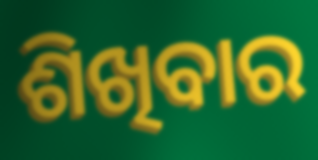
ଶିଖିବାର